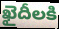
ఖైదీలకి